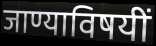
जाण्याविषयीं